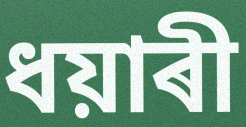
ধয়াৰী